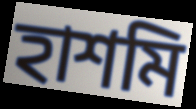
হাশমি